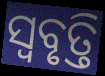
ସ୍ୱବୃତ୍ତି